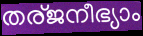
തര്ജനീഭ്യാം